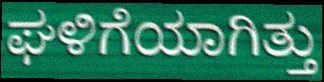
ಘಳಿಗೆಯಾಗಿತ್ತು